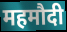
महमौदी